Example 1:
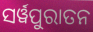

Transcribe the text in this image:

ସର୍ୱପୁରାତନ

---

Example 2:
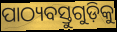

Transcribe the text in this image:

ପାଠ୍ୟବସ୍ତୁଗୁଡ଼ିକୁ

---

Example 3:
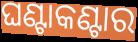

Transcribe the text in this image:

ଘଣ୍ଟାକଣ୍ଟାର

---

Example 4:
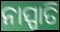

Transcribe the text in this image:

ନାସ୍ପାତି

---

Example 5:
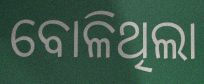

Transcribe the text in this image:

ବୋଳିଥିଲା